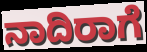
ನಾದಿರಾಗೆ